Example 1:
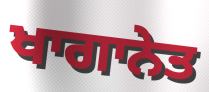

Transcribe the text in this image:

ਖਾਗਾਨੇਤ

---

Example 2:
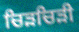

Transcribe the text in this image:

ਚਿੜਚਿੜੀ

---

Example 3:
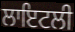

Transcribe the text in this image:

ਲਾਇਟਲੀ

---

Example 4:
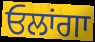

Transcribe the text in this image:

ਓਲਾਂਗਾ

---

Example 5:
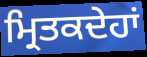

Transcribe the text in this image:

ਮ੍ਰਿਤਕਦੇਹਾਂ